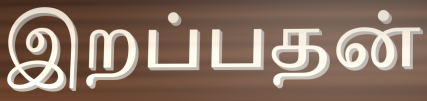
இறப்பதன்